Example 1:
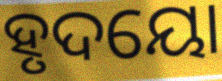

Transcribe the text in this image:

ହୃଦୟୋ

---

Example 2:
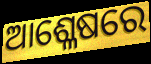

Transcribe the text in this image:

ଆଶ୍ଳେଷରେ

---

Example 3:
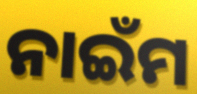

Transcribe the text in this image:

ନାଇଁମ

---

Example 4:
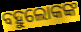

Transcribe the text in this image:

ବହୁଲୋକଙ୍କ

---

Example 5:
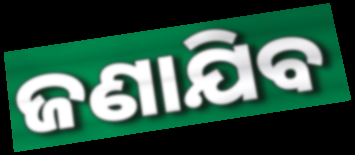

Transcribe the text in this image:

ଜଣାଯିବ